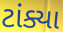
ટાંક્યા